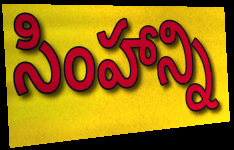
సింహాన్ని